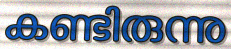
കണ്ടിരുന്നു